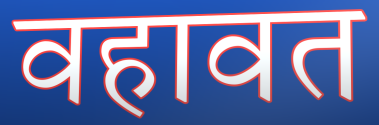
वहावत